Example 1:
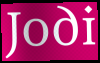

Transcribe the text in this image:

Jodi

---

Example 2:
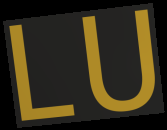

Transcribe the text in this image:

LU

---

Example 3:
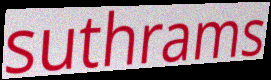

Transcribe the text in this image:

suthrams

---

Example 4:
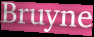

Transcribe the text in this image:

Bruyne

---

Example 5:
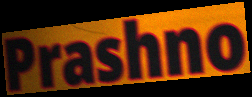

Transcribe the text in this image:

Prashno